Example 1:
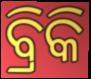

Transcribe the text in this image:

ବ୍ରିକି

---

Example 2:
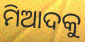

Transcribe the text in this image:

ମିଆଦକୁ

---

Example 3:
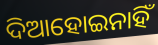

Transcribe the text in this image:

ଦିଆହୋଇନାହିଁ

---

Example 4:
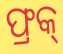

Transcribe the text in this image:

ଫ୍ରକ୍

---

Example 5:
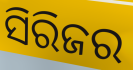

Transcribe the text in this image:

ସିରିଜର